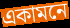
একামনে